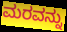
ಮರವನ್ನು